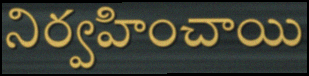
నిర్వహించాయి